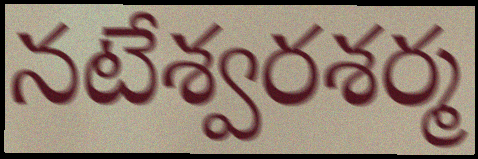
నటేశ్వరశర్మ